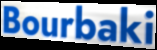
Bourbaki